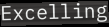
Excelling